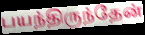
பயந்திருந்தேன்